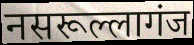
नसरूल्लागंज